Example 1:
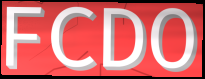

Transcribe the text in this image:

FCDO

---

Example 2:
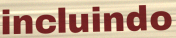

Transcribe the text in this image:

incluindo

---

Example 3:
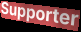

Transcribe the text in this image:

Supporter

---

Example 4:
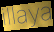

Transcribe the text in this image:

illaya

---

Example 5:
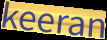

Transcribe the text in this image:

keeran